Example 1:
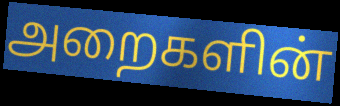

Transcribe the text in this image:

அறைகளின்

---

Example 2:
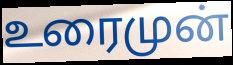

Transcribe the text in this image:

உரைமுன்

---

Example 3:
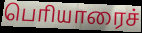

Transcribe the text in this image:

பெரியாரைச்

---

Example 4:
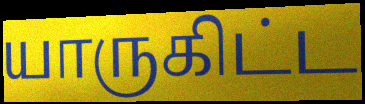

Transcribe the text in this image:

யாருகிட்ட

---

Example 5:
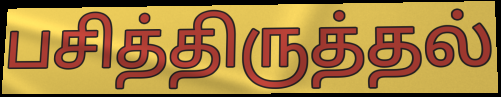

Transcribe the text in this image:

பசித்திருத்தல்